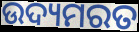
ଉଦ୍ୟମରତ